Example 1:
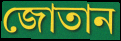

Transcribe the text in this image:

জোতান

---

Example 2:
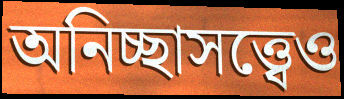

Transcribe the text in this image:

অনিচ্ছাসত্ত্বেও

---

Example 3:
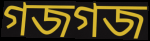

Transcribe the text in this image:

গজগজ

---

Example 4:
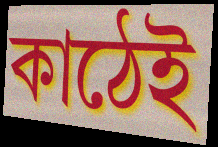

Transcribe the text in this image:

কাঠেই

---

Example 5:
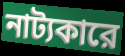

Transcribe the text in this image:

নাট্যকারে